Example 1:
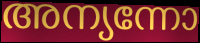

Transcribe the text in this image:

അന്യന്നോ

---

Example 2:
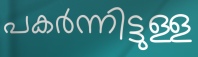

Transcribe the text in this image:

പകർന്നിട്ടുള്ള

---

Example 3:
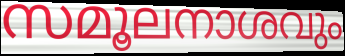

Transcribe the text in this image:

സമൂലനാശവും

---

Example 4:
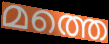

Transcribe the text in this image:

മത്തെ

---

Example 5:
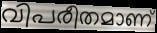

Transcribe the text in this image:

വിപരീതമാണ്